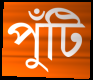
পুঁটি